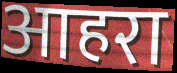
आहरा